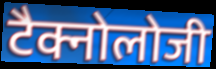
टैक्नोलोजी